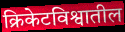
क्रिकेटविश्वातील